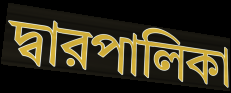
দ্বারপালিকা